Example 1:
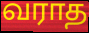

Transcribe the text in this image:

வராத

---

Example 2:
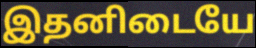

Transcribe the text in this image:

இதனிடையே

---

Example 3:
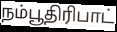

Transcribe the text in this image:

நம்பூதிரிபாட்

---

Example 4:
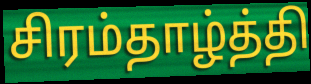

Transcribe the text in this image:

சிரம்தாழ்த்தி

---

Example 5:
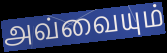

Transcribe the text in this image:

அவ்வையும்